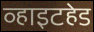
व्हाइटहेड